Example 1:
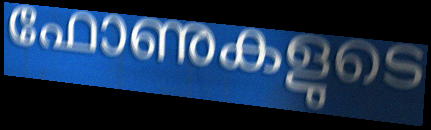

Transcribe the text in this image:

ഫോണുകളുടെ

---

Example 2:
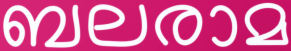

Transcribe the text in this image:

ബലരാമ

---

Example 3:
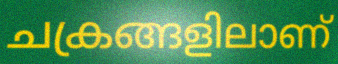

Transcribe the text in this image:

ചക്രങ്ങളിലാണ്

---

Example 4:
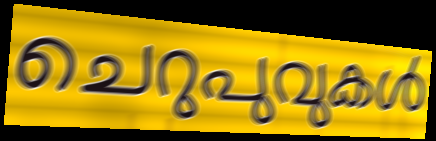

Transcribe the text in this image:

ചെറുപുവുകൾ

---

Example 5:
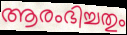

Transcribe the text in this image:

ആരംഭിച്ചതും